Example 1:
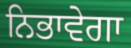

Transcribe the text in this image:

ਨਿਭਾਵੇਗਾ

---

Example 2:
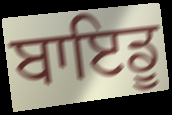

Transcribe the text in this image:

ਬਾਇਡੂ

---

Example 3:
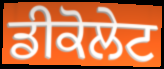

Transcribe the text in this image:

ਡੀਕੋਲੇਟ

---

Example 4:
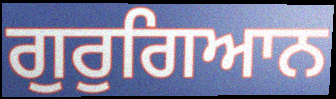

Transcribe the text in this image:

ਗੁਰੁਗਿਆਨ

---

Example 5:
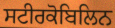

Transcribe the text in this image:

ਸਟੀਰਕੋਬਿਲਿਨ